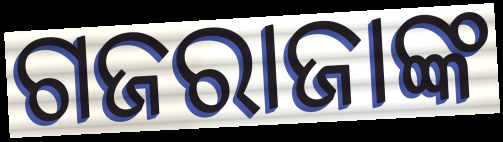
ଗଜରାଜାଙ୍କ